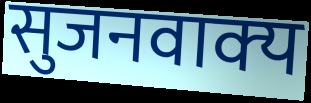
सुजनवाक्य